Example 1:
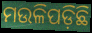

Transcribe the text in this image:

ମଉଳିପଡ଼ିଛି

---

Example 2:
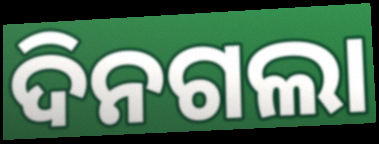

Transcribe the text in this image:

ଦିନଗଲା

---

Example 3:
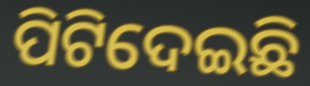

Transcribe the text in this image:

ପିଟିଦେଇଛି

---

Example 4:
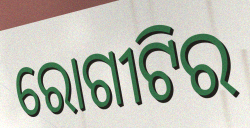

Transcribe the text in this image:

ରୋଗୀଟିର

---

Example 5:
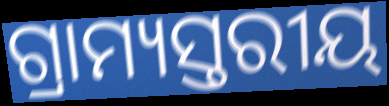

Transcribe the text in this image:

ଗ୍ରାମ୍ୟସ୍ତରୀୟ